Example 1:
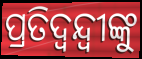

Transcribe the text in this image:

ପ୍ରତିଦ୍ବନ୍ଦ୍ବୀଙ୍କୁ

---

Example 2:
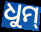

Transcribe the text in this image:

ଧୁମ୍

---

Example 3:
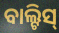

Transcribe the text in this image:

ବାଲ୍ଟିସ୍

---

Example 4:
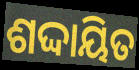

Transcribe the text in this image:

ଶଦ୍ଦାୟିତ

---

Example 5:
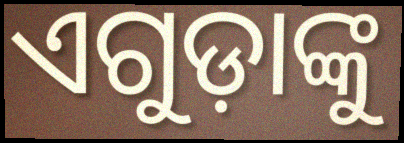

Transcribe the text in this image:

ଏଗୁଡ଼ାଙ୍କୁ